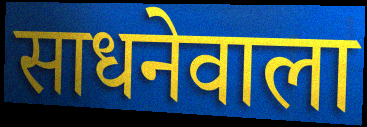
साधनेवाला